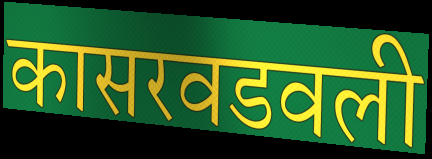
कासरवडवली